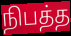
நிபத்த